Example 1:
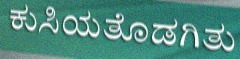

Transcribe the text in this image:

ಕುಸಿಯತೊಡಗಿತು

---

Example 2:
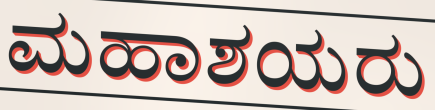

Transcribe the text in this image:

ಮಹಾಶಯರು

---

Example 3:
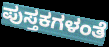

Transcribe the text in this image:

ಪುಸ್ತಕಗಳಂತೆ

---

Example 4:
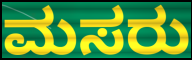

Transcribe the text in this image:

ಮಸರು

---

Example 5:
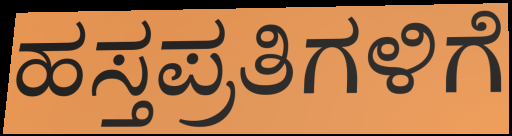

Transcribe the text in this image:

ಹಸ್ತಪ್ರತಿಗಳಿಗೆ